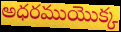
అధరముయొక్క